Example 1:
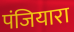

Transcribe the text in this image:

पंजियारा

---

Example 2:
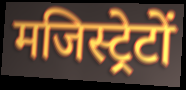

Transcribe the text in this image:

मजिस्ट्रेटों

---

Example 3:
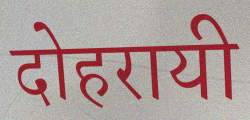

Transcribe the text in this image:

दोहरायी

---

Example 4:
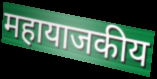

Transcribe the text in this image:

महायाजकीय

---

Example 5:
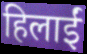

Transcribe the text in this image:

हिलाईं